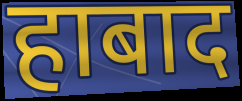
हाबाद